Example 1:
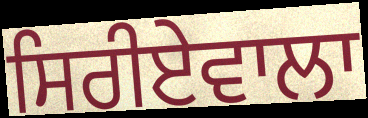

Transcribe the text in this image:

ਸਿਰੀਏਵਾਲਾ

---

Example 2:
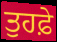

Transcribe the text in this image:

ਤੁਹਫ਼ੇ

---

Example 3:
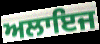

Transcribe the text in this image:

ਅਲਾਇਜ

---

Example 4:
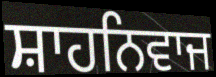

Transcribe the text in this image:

ਸ਼ਾਹਨਿਵਾਜ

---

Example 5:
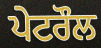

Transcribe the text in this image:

ਪੇਟਰੌਲ